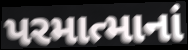
પરમાત્માનાં